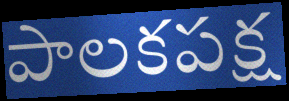
పాలకపక్ష